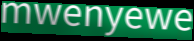
mwenyewe